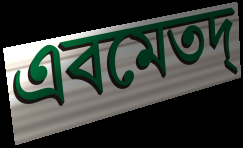
এবমেতদ্